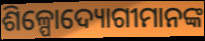
ଶିଳ୍ପୋଦ୍ୟୋଗୀମାନଙ୍କ